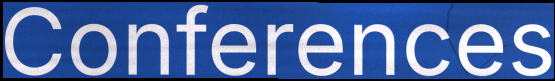
Conferences